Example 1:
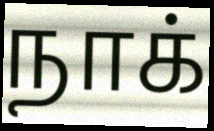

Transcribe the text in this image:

நாக்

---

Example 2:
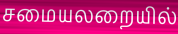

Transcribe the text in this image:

சமையலறையில்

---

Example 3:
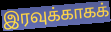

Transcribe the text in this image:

இரவுக்காகக்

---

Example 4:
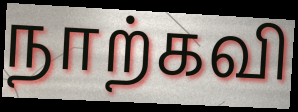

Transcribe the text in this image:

நாற்கவி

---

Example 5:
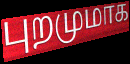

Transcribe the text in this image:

புறமுமாக